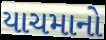
યાચમાનો